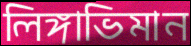
লিঙ্গাভিমান